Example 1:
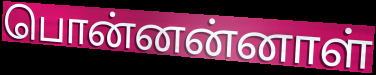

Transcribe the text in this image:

பொன்னன்னாள்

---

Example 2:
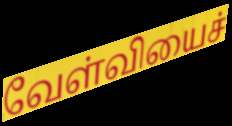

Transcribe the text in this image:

வேள்வியைச்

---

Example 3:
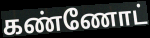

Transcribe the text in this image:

கண்ணோட்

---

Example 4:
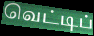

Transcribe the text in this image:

வெட்டிப்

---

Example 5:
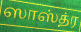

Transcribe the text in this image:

ஸாஸ்த்ர